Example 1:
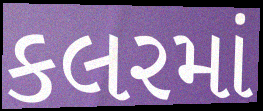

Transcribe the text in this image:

કલરમાં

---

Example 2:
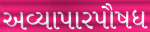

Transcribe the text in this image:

અવ્યાપારપૌષધ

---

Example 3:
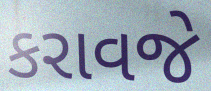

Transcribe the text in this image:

કરાવજે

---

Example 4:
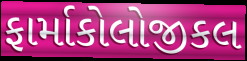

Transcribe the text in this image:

ફાર્માકોલોજીકલ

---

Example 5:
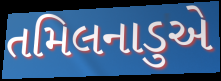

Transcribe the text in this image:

તમિલનાડુએ